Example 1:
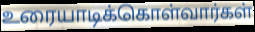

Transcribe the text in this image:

உரையாடிக்கொள்வார்கள்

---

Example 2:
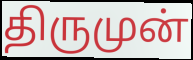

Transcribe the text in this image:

திருமுன்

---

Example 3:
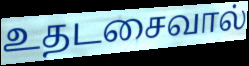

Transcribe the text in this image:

உதடசைவால்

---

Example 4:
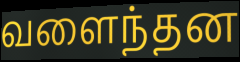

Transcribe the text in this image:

வளைந்தன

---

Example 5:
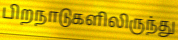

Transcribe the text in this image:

பிறநாடுகளிலிருந்து